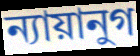
ন্যায়ানুগ